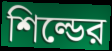
শিল্ডের